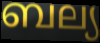
ബല്യ